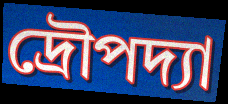
দ্রৌপদ্যা